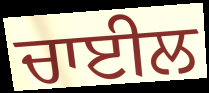
ਚਾਈਲ